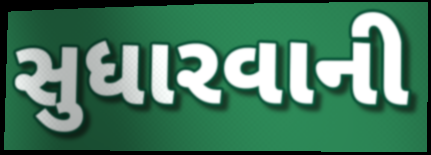
સુધારવાની